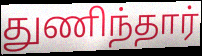
துணிந்தார்